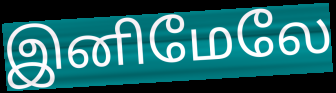
இனிமேலே